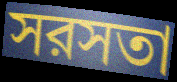
সরসতা